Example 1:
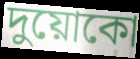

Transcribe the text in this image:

দুয়োকো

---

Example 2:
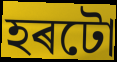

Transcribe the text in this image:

হৰটো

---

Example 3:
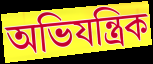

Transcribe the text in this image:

অভিযন্ত্ৰিক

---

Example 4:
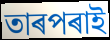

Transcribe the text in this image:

তাৰপৰাই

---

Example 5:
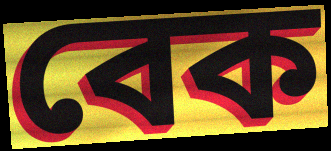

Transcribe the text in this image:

বেক